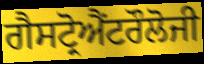
ਗੈਸਟ੍ਰੋਐਂਟਰੌਲੋਜੀ